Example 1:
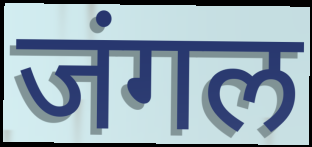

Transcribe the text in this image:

जंगल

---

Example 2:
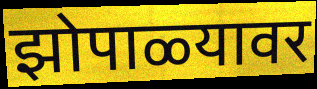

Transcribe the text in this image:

झोपाळ्यावर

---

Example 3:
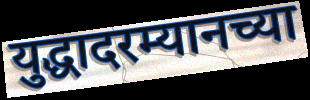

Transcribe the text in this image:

युद्धादरम्यानच्या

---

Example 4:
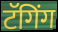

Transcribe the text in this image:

टॅगिंग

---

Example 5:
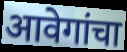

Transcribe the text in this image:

आवेगांचा